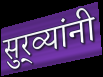
सुर्व्यांनी